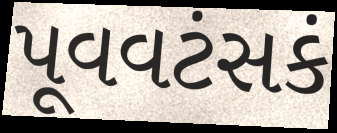
પૂવવટંસકં